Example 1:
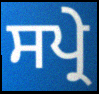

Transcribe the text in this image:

ਸਪ੍ਰੇ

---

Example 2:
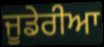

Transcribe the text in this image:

ਜੂਡੇਰੀਆ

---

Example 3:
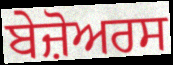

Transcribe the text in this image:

ਬੇਜ਼ੋਅਰਸ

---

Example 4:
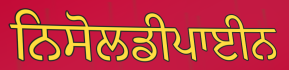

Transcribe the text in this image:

ਨਿਸੋਲਡੀਪਾਈਨ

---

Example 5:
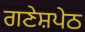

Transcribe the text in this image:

ਗਣੇਸ਼ਪੇਠ